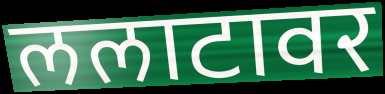
ललाटावर